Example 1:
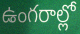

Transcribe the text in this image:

ఉంగరాల్లో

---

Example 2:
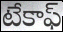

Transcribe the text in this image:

టేకాఫ్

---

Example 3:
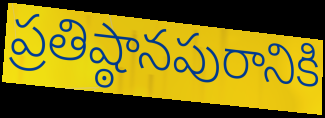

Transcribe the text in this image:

ప్రతిష్ఠానపురానికి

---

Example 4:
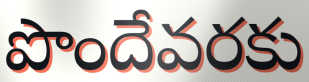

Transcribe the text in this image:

పొందేవరకు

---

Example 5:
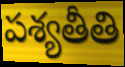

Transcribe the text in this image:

పశ్యతీతి